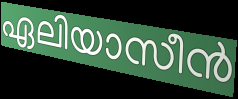
ഏലിയാസീൻ